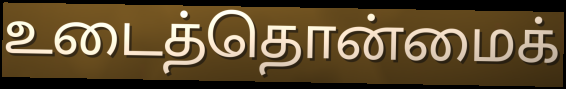
உடைத்தொன்மைக்